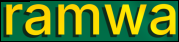
ramwa